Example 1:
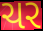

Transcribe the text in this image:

ચર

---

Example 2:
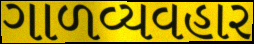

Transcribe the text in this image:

ગાળવ્યવહાર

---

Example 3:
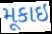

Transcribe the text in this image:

મૂકાઇ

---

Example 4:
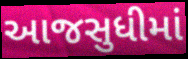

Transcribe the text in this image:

આજસુધીમાં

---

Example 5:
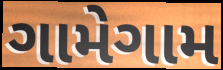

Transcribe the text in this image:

ગામેગામ